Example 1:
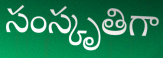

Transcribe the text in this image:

సంస్కృతిగా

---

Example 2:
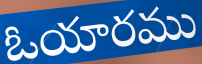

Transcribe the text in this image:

ఓయారము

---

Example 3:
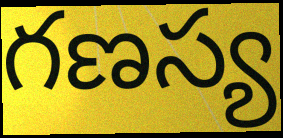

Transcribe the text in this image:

గణస్య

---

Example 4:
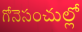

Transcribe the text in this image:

గోనెసంచుల్లో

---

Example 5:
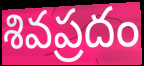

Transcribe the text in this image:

శివప్రదం